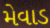
મેવાડ